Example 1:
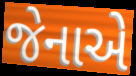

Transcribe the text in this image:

જેનાએ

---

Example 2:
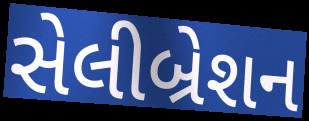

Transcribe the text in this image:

સેલીબ્રેશન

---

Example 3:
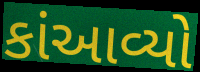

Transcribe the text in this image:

કાંઆવ્યો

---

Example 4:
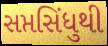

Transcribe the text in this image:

સપ્તસિંધુથી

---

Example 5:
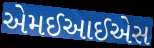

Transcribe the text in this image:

એમઈઆઈએસ